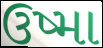
ઉષ્મા